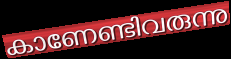
കാണേണ്ടിവരുന്നു